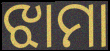
ଝାମା